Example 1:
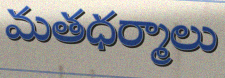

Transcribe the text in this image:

మతధర్మాలు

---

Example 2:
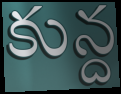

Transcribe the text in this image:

కున్ద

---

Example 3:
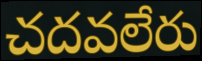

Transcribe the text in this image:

చదవలేరు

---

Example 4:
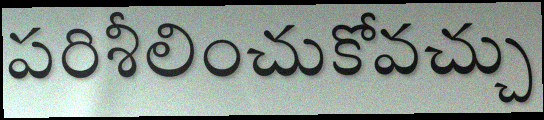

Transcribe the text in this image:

పరిశీలించుకోవచ్చు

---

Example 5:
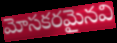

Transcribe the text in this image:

మోసకరమైనవి